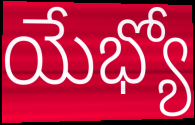
యేభ్యో